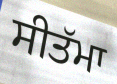
ਸੀਤੱਮਾ